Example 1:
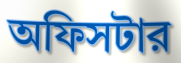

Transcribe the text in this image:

অফিসটার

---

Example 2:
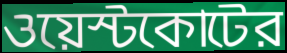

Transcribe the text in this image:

ওয়েস্টকোটের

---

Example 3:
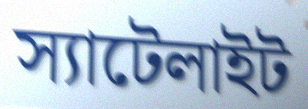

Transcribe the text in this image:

স্যাটেলাইট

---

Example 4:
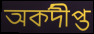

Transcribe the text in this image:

অর্কদীপ্ত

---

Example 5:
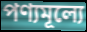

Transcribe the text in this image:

পণ্যমূল্যে